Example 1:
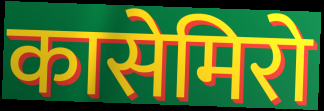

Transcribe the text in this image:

कासेमिरो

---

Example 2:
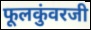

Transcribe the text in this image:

फूलकुंवरजी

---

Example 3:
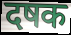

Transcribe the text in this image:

दषक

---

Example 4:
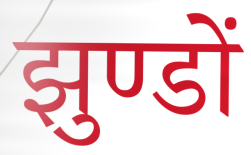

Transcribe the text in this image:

झुण्डों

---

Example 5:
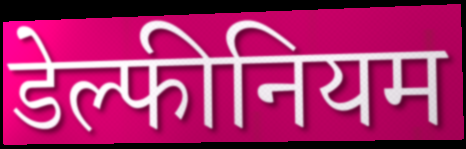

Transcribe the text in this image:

डेल्फीनियम